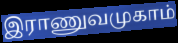
இராணுவமுகாம்